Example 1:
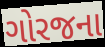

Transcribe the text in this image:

ગોરજના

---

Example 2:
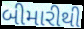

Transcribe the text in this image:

બીમારીથી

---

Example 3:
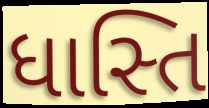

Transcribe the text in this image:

ધાસ્તિ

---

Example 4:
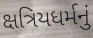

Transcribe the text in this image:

ક્ષત્રિયધર્મનું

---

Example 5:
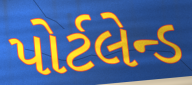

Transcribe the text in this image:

પોર્ટલેન્ડ